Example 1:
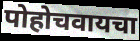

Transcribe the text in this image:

पोहोचवायचा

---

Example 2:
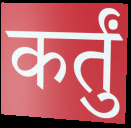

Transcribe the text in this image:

कर्तुं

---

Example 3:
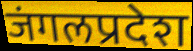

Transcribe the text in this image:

जंगलप्रदेश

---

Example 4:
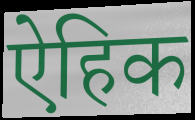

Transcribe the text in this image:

ऐहिक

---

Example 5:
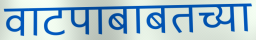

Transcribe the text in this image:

वाटपाबाबतच्या